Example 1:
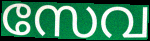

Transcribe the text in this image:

സേവ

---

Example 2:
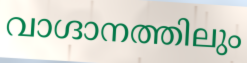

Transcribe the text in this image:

വാഗ്ദാനത്തിലും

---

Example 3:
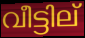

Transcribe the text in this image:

വീട്ടില്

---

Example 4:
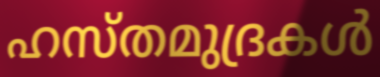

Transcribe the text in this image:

ഹസ്തമുദ്രകൾ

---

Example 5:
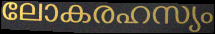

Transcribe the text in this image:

ലോകരഹസ്യം